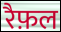
रैफ़ल